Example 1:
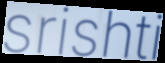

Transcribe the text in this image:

srishti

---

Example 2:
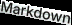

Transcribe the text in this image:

Markdown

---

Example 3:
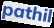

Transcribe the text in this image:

pathil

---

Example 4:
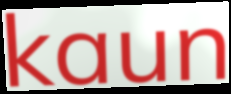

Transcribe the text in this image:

kaun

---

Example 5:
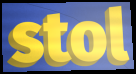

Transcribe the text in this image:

stol